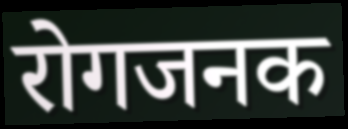
रोगजनक